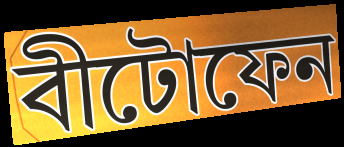
বীটোফেন